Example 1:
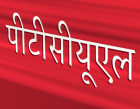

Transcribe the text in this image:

पीटीसीयूएल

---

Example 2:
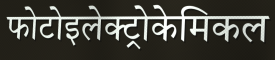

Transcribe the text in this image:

फोटोइलेक्ट्रोकेमिकल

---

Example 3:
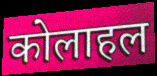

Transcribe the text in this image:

कोलाहल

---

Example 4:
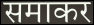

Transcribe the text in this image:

समाकर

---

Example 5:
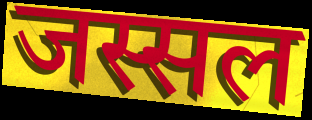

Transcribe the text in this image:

जस्सल